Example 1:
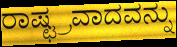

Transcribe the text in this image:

ರಾಷ್ಟ್ರವಾದವನ್ನು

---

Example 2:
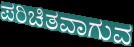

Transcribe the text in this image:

ಪರಿಚಿತವಾಗುವ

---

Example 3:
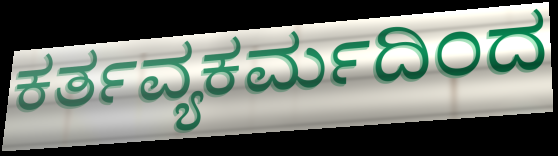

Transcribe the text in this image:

ಕರ್ತವ್ಯಕರ್ಮದಿಂದ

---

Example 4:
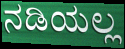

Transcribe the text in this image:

ನಡಿಯಲ್ಲ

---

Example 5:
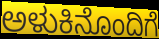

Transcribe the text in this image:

ಅಳುಕಿನೊಂದಿಗೆ